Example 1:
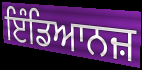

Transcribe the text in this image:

ਇੰਡਿਆਨਜ਼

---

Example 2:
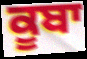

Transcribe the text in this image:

ਕੂਬਾ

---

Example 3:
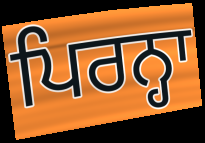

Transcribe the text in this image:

ਪਿਰਨ੍ਹਾ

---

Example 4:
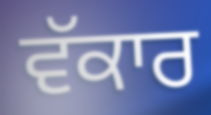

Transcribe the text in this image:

ਵੱਕਾਰ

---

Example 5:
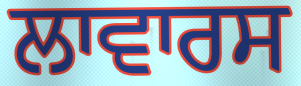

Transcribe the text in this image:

ਲਾਵਾਰਸ